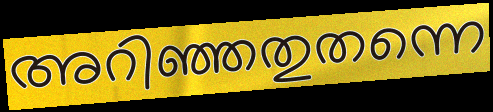
അറിഞ്ഞതുതന്നെ